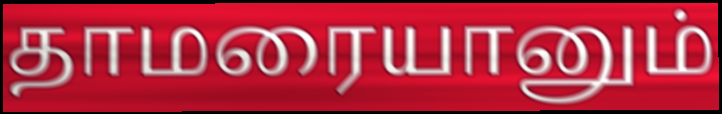
தாமரையானும்